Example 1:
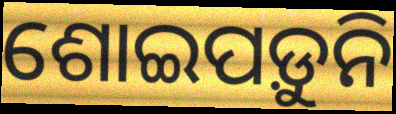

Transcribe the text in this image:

ଶୋଇପଡ଼ୁନି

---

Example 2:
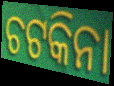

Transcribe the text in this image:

ଚଟକିନା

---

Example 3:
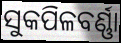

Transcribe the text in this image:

ସୁକପିଳବର୍ଣ୍ଣା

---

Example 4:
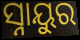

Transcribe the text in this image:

ସ୍ନାୟୁର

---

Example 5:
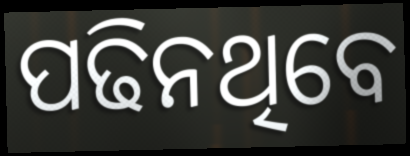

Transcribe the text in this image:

ପଢିନଥିବେ